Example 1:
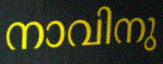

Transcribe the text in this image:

നാവിനു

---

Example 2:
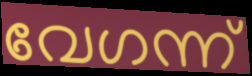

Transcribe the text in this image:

വേഗന്ന്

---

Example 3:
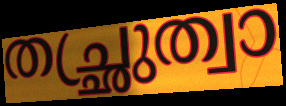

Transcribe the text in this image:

തച്ഛ്രുത്വാ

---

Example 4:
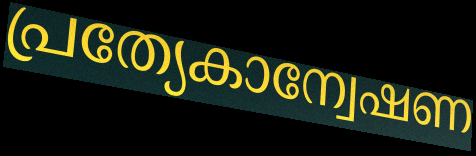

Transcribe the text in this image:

പ്രത്യേകാന്വേഷണ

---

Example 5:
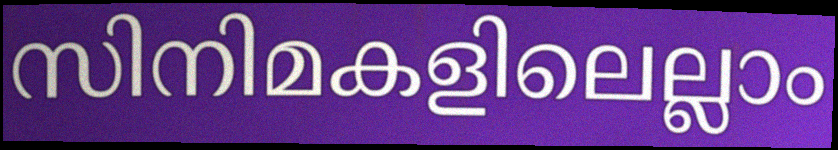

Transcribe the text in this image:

സിനിമകളിലെല്ലാം